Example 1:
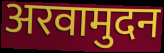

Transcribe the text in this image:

अरवामुदन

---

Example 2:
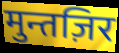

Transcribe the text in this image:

मुन्तज़िर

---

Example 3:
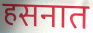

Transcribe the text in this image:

हसनात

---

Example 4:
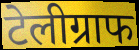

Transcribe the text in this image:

टेलीग्राफ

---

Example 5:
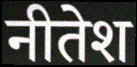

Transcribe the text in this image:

नीतेश